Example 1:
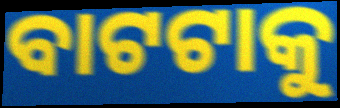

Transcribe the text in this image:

ବାଟଟାକୁ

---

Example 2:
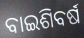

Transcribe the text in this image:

ବାଇଶିବର୍ଷ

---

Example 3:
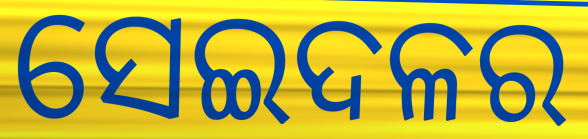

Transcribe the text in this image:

ସେଇଦଳର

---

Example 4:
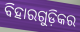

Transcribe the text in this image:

ବିହାରଗୁଡ଼ିକର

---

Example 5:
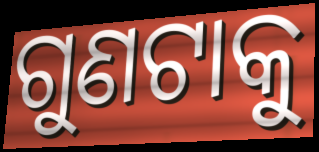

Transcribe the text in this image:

ଗୁଣଟାକୁ